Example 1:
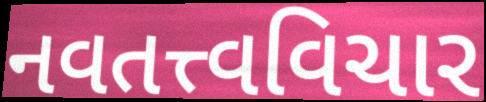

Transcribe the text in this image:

નવતત્ત્વવિચાર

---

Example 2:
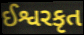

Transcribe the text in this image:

ઈશ્વરકૃત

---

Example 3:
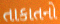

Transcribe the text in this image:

તાકાતનો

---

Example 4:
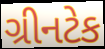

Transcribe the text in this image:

ગ્રીનટેક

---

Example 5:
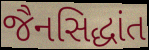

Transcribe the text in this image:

જૈનસિદ્ધાંત